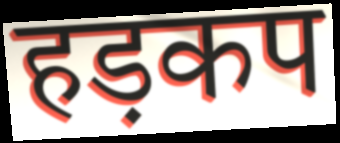
हड़कप